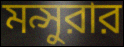
মন্সুরার